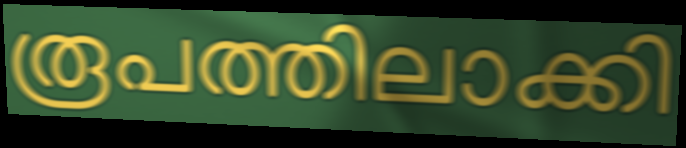
രൂപത്തിലാക്കി